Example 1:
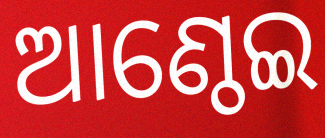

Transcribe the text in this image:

ଆଣ୍ଠେଇ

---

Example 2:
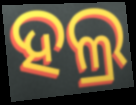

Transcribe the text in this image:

ହଲ୍ର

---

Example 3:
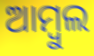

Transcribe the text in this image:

ଆମ୍ବୁଲ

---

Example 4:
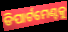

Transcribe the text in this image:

ଡିପାର୍ଟମେଣ୍ଟକୁ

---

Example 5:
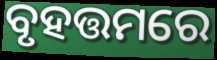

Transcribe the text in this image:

ବୃହତ୍ତମରେ